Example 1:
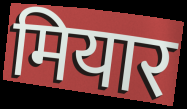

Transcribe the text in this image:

मियार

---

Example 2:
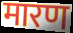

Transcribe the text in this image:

मारण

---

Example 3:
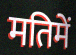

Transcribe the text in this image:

मतिमें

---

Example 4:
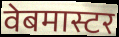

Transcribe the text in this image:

वेबमास्टर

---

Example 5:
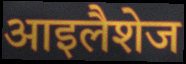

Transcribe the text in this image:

आइलैशेज